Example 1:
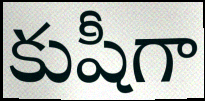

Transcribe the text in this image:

కుషీగా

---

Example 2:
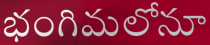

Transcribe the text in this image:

భంగిమలోనూ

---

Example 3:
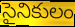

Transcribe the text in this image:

సైనికులం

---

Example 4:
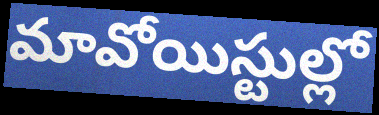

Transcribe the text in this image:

మావోయిస్టుల్లో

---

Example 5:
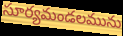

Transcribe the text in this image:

సూర్యమండలమును